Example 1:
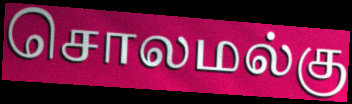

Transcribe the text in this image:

சொலமல்கு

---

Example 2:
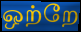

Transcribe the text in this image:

ஒற்றே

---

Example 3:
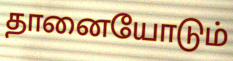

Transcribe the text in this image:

தானையோடும்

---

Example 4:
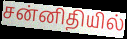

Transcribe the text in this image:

சன்னிதியில்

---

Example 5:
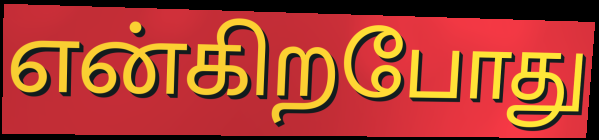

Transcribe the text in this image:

என்கிறபோது